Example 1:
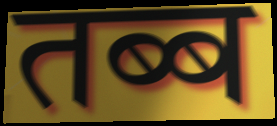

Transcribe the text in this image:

तब्ब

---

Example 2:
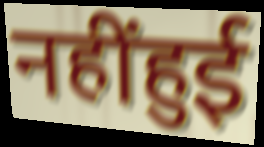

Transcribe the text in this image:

नहींहुई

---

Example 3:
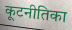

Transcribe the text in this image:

कूटनीतिका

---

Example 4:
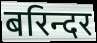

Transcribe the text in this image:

बरिन्दर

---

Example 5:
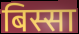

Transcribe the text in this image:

बिस्सा